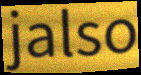
jalso